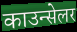
काउन्सेलर